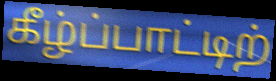
கீழ்ப்பாட்டிற்